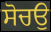
ਸੋਚਉ